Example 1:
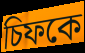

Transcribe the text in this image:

চিফকে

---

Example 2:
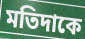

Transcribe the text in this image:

মতিদাকে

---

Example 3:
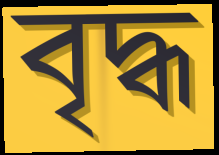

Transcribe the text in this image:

বৃদ্ধ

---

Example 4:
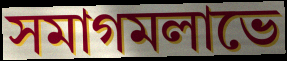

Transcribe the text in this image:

সমাগমলাভে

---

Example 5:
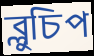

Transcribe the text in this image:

ব্লুচিপ